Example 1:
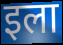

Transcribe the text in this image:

इला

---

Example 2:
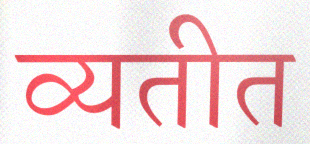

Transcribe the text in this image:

व्यतीत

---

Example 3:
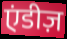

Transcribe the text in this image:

एंडीज़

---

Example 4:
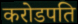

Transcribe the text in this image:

करोडपति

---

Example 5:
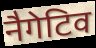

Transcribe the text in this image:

नैगेटिव